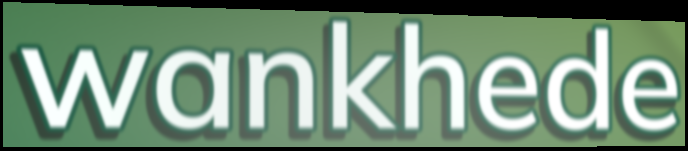
wankhede